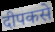
दीपकसे